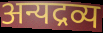
अन्यद्रव्य